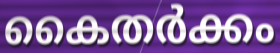
കൈതർക്കം